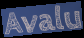
Avalu